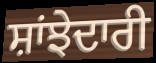
ਸ਼ਾਂਝੇਦਾਰੀ